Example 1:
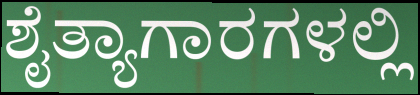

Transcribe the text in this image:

ಶೈತ್ಯಾಗಾರಗಳಲ್ಲಿ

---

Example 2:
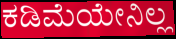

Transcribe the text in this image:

ಕಡಿಮೆಯೇನಿಲ್ಲ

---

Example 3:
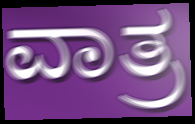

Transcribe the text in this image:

ವಾತ್ರ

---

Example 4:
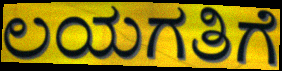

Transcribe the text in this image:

ಲಯಗತಿಗೆ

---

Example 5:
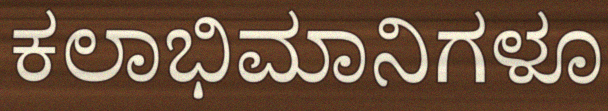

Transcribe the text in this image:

ಕಲಾಭಿಮಾನಿಗಳೂ